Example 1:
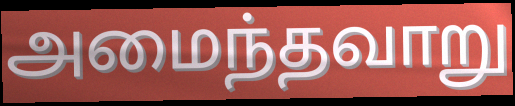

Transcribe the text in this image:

அமைந்தவாறு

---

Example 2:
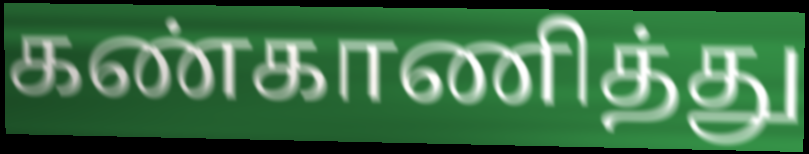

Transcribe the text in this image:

கண்காணித்து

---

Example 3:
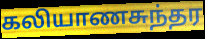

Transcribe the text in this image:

கலியாணசுந்தர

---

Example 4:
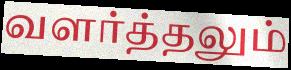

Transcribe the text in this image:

வளர்த்தலும்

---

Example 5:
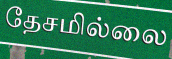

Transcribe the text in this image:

தேசமில்லை